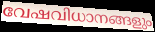
വേഷവിധാനങ്ങളും